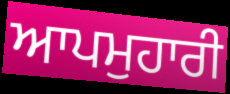
ਆਪਮੁਹਾਰੀ